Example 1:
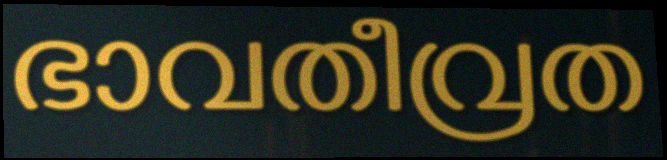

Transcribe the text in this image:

ഭാവതീവ്രത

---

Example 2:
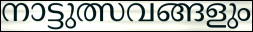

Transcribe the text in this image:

നാട്ടുത്സവങ്ങളും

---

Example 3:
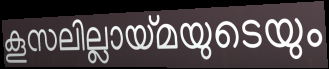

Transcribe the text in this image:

കൂസലില്ലായ്മയുടെയും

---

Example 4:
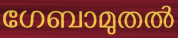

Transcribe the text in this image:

ഗേബാമുതൽ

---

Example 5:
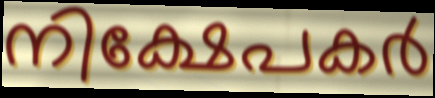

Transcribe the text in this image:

നിക്ഷേപകർ